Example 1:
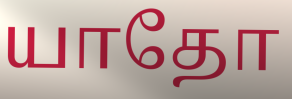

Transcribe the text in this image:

யாதோ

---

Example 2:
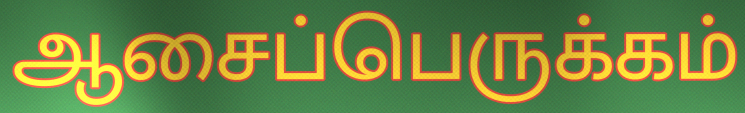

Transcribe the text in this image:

ஆசைப்பெருக்கம்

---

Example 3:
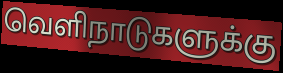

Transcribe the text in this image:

வெளிநாடுகளுக்கு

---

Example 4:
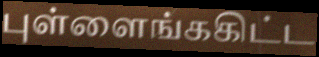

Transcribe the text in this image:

புள்ளைங்ககிட்ட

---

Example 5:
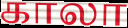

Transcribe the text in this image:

காலா